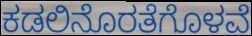
ಕಡಲಿನೊರತೆಗೊಳವೆ